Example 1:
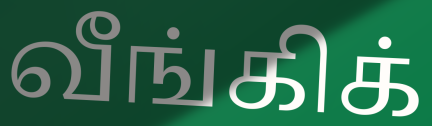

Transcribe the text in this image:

வீங்கிக்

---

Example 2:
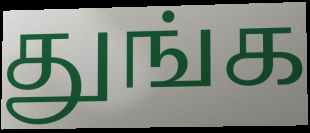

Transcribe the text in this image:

துங்க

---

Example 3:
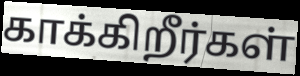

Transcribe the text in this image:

காக்கிறீர்கள்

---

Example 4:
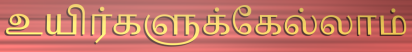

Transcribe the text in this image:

உயிர்களுக்கேல்லாம்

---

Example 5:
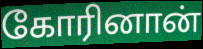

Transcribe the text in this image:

கோரினான்